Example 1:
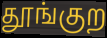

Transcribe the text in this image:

தூங்குற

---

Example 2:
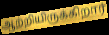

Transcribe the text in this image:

ஆற்றியிருக்கிறார்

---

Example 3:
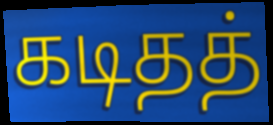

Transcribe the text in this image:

கடிதத்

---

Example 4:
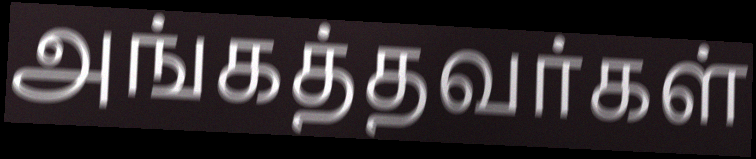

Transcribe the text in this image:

அங்கத்தவர்கள்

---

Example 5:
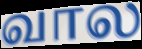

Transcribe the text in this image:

வால